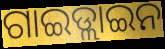
ଗାଇଡ୍ଲାଇନ